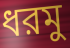
ধরমু